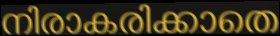
നിരാകരിക്കാതെ